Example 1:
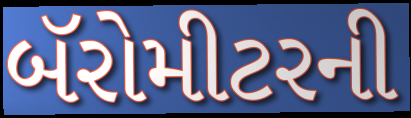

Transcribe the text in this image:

બૅરોમીટરની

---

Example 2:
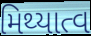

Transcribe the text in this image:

મિથ્યાત્વ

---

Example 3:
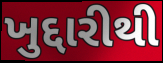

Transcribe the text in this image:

ખુદ્દારીથી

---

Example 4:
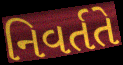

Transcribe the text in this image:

નિવર્તતે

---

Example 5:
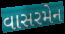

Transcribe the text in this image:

વાસરમેન